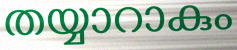
തയ്യാറാകും